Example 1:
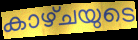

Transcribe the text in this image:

കാഴ്‌ചയുടെ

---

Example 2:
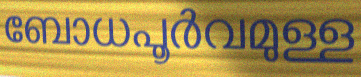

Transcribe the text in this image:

ബോധപൂർവമുള്ള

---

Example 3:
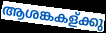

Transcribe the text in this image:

ആശങ്കകള്ക്കു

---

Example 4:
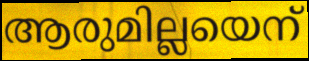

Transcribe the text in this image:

ആരുമില്ലയെന്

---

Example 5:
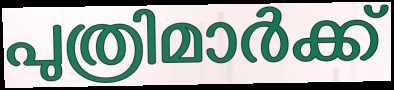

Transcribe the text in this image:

പുത്രിമാർക്ക്